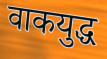
वाकयुद्ध